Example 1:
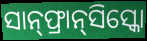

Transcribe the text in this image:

ସାନ୍‌ଫ୍ରାନ୍‌ସିସ୍କୋ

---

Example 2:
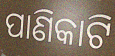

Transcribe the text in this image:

ପାଣିକାଟି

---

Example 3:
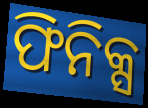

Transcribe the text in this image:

ଫିନିକ୍ସ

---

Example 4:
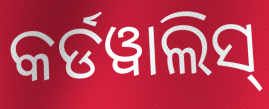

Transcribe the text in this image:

କର୍ଡୱାଲିସ୍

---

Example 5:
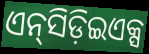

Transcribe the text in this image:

ଏନ୍‍ସିଡ଼ିଇଏକ୍ସ